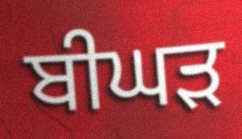
ਬੀਘੜ